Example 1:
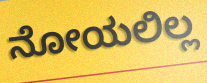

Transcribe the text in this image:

ನೋಯಲಿಲ್ಲ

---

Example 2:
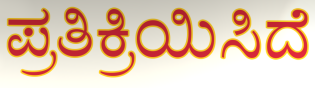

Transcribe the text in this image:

ಪ್ರತಿಕ್ರಿಯಿಸಿದೆ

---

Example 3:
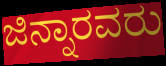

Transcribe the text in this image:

ಜಿನ್ನಾರವರು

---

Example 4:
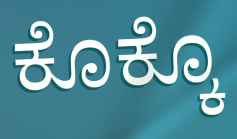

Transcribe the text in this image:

ಕೊಕ್ಕೊ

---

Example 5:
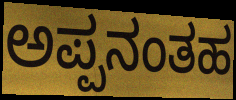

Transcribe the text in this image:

ಅಪ್ಪನಂತಹ